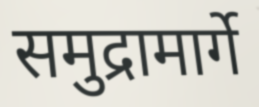
समुद्रामार्गे